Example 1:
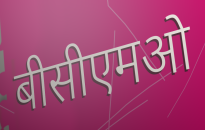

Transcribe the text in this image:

बीसीएमओ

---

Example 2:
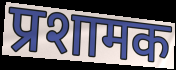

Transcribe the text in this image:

प्रशामक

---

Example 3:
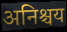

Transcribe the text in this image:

अनिश्चय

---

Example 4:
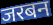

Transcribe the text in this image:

जरबन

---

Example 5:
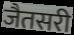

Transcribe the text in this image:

जैतसरी